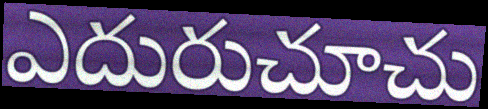
ఎదురుచూచు